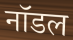
नॉडल